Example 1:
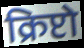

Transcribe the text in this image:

क्रिप्टो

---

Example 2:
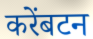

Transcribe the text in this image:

करेंबटन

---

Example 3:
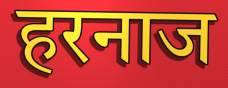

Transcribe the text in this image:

हरनाज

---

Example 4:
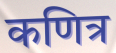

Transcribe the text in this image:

कणित्र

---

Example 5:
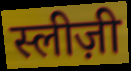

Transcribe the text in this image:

स्लीज़ी